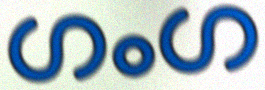
ഗംഗ